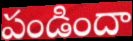
పండిందా